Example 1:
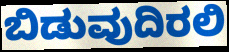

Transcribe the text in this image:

ಬಿಡುವುದಿರಲಿ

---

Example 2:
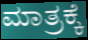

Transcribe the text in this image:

ಮಾತ್ರಕ್ಕೆ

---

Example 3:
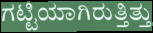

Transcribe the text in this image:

ಗಟ್ಟಿಯಾಗಿರುತ್ತಿತ್ತು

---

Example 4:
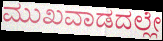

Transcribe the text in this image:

ಮುಖವಾಡದಲ್ಲೇ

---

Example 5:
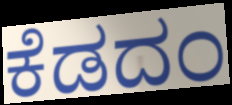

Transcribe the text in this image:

ಕೆಡದಂ